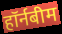
हॉर्नबीम